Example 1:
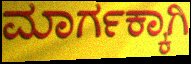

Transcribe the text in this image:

ಮಾರ್ಗಕ್ಕಾಗಿ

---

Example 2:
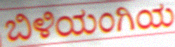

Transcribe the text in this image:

ಬಿಳಿಯಂಗಿಯ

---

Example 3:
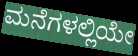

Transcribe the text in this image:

ಮನೆಗಳಲ್ಲಿಯೇ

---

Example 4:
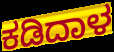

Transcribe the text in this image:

ಕಡಿದಾಳ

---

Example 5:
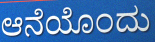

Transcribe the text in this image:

ಆನೆಯೊಂದು